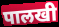
पालखी